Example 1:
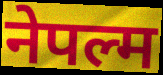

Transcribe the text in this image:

नेपल्म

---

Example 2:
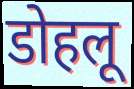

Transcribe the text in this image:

डोहलू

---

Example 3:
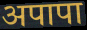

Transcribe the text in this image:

अपापा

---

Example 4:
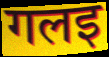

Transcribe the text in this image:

गलइ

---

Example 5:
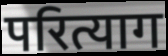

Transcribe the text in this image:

परित्याग